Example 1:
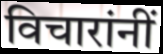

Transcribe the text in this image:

विचारांनीं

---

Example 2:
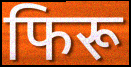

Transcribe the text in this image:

फिरू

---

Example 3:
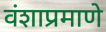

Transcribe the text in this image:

वंशाप्रमाणे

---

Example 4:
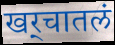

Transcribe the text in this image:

खर्चातलं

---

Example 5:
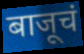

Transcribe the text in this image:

बाजूचं